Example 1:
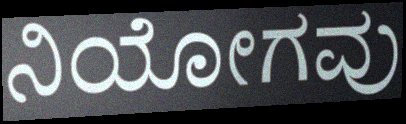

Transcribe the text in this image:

ನಿಯೋಗವು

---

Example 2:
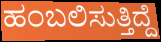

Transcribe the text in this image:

ಹಂಬಲಿಸುತ್ತಿದ್ದೆ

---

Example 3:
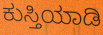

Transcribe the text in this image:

ಕುಸ್ತಿಯಾಡಿ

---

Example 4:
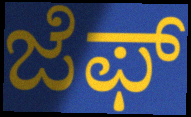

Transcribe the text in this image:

ಜೆಫ್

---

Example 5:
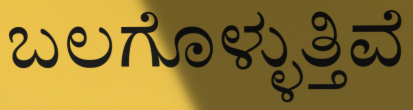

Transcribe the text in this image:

ಬಲಗೊಳ್ಳುತ್ತಿವೆ